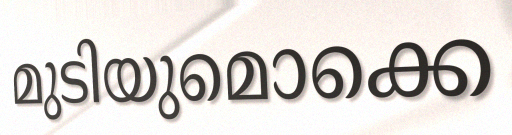
മുടിയുമൊക്കെ